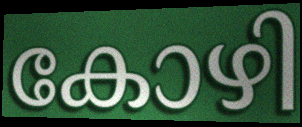
കോഴി